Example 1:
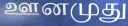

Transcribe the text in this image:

ஊனமுது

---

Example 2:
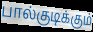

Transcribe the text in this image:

பால்குடிக்கும்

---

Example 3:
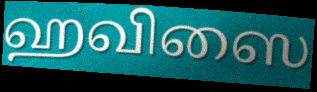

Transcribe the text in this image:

ஹவிஸை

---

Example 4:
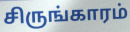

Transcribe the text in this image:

சிருங்காரம்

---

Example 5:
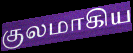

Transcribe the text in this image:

குலமாகிய